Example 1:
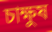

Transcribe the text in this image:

চাক্ষুষ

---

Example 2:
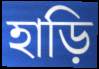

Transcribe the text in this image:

হাড়ি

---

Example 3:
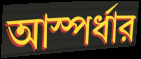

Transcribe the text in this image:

আস্পর্ধার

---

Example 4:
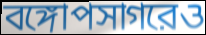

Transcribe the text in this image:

বঙ্গোপসাগরেও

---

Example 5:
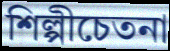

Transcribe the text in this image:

শিল্পীচেতনা